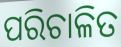
ପରିଚାଳିତ